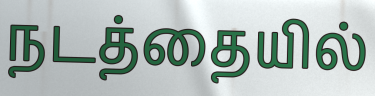
நடத்தையில்